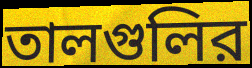
তালগুলির